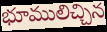
భూములిచ్చిన